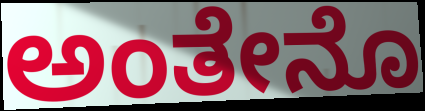
ಅಂತೇನೊ